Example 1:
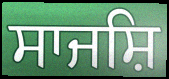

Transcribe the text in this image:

ਸਾਜਸ਼ਿ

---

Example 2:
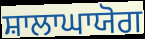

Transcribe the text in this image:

ਸ਼ਾਲਾਘਾਯੋਗ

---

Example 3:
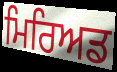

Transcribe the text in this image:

ਮਿਰਿਅਡ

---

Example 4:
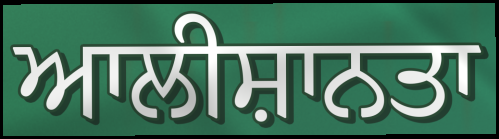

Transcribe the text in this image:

ਆਲੀਸ਼ਾਨਤਾ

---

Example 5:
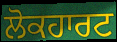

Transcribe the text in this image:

ਲੋਕਹਾਰਟ